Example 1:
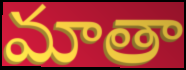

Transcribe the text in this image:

మాతా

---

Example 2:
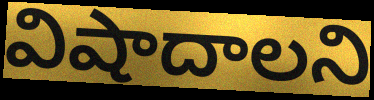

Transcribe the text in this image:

విషాదాలని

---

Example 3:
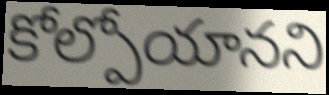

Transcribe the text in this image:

కోల్పోయానని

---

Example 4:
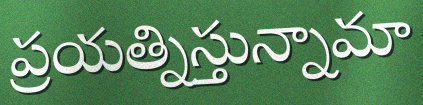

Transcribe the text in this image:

ప్రయత్నిస్తున్నామా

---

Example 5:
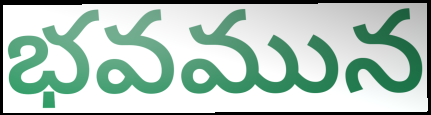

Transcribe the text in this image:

భవమున